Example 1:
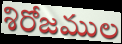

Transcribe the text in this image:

శిరోజముల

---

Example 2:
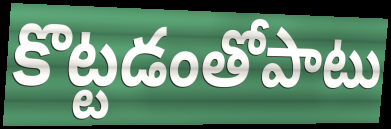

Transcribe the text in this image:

కొట్టడంతోపాటు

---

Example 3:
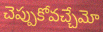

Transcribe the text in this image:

చెప్పుకోవచ్చేమో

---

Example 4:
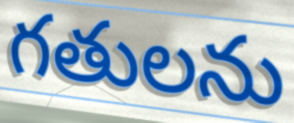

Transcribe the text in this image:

గతులను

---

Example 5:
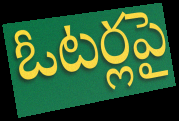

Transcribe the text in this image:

ఓటర్లపై